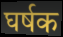
घर्षक